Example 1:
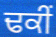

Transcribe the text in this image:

ਢਕੀਂ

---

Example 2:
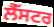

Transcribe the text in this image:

ਲੈੱਸਟਰ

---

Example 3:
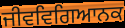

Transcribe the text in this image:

ਜੀਵਵਿਗਿਆਨਕ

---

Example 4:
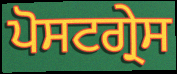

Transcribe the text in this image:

ਪੋਸਟਗ੍ਰੇਸ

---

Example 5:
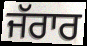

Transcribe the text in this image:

ਜੱਰਾਰ